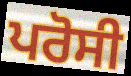
ਪਰੋਸੀ